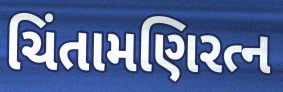
ચિંતામણિરત્ન